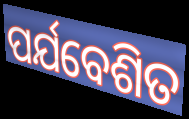
ପର୍ଯବେଶିତ